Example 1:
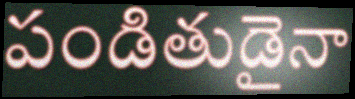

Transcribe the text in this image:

పండితుడైనా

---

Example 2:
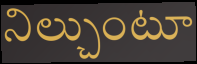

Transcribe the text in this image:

నిల్చుంటూ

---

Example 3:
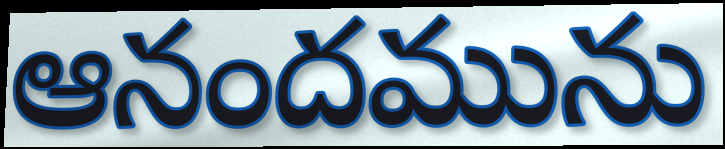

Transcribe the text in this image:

ఆనందమును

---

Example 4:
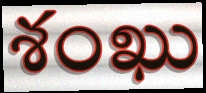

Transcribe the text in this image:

శంఖు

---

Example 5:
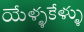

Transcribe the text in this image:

యేళ్ళకేళ్ళు